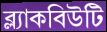
ব্ল্যাকবিউটি